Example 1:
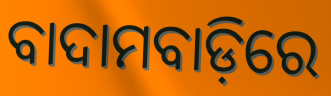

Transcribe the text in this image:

ବାଦାମବାଡ଼ିରେ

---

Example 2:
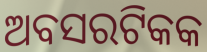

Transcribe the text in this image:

ଅବସରଟିକକ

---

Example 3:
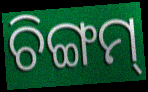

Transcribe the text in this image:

ଚିଙ୍ଗମ୍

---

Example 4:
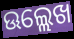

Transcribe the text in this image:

ଊଲ୍ଲେଖ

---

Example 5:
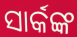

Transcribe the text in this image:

ସାର୍କଙ୍କ